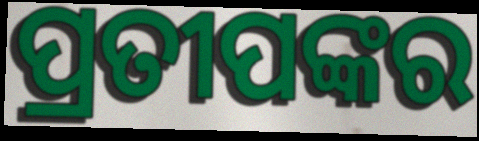
ପ୍ରତୀପଙ୍କର